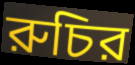
রুচির